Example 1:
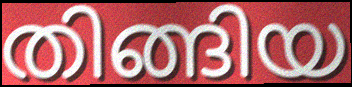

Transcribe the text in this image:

തിങ്ങിയ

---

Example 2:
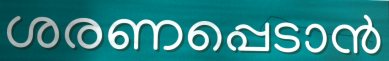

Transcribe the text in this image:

ശരണപ്പെടാൻ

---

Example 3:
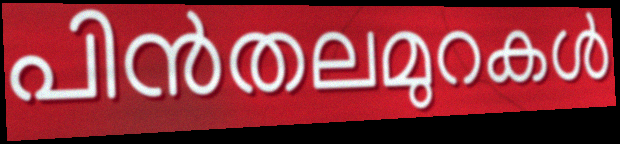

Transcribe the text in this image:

പിൻതലമുറകൾ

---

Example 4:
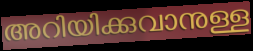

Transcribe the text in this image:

അറിയിക്കുവാനുള്ള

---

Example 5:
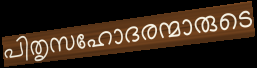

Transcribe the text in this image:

പിതൃസഹോദരന്മാരുടെ